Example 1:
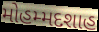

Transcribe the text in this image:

મોહમ્મદશાહ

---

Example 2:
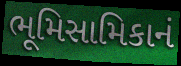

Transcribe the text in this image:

ભૂમિસામિકાનં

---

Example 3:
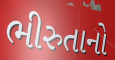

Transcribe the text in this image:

ભીરુતાનો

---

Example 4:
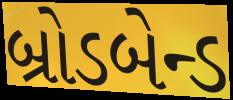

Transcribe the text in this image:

બ્રોડબેન્ડ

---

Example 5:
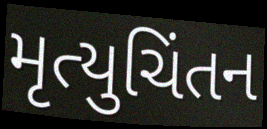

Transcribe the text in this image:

મૃત્યુચિંતન